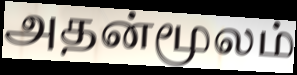
அதன்மூலம்